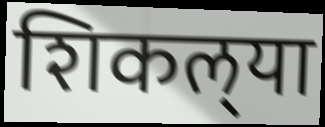
शिकल्या